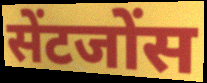
सेंटजोंस